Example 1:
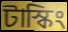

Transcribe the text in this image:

টাস্কিং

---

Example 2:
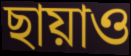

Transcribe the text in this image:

ছায়াও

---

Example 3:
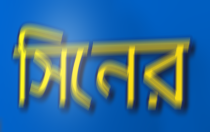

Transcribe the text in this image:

সিনের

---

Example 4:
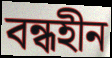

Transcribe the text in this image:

বন্ধহীন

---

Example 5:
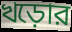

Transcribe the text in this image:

খড়োর